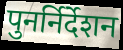
पुनर्निर्देशन